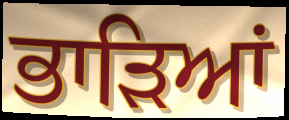
ਭਾੜਿਆਂ